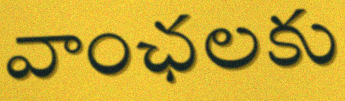
వాంఛలకు